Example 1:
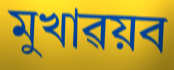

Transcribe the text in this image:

মুখাৱয়ব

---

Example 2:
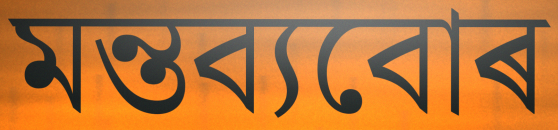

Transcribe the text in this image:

মন্তব্যবোৰ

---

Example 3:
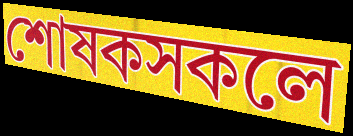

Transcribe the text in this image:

শোষকসকলে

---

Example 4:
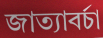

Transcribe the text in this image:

জাত্যাবৰ্চা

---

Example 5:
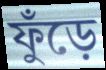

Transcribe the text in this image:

ফুঁড়ে